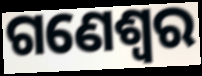
ଗଣେଶ୍ୱର